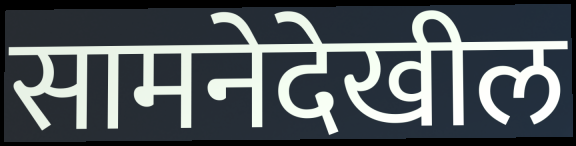
सामनेदेखील